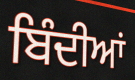
ਬਿੰਦੀਆਂ